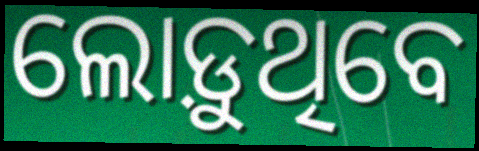
ଲୋଡ଼ୁଥିବେ